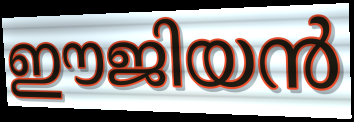
ഈജിയൻ